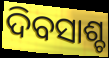
ଦିବସାଶ୍ଚ